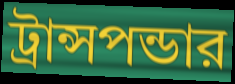
ট্রান্সপন্ডার